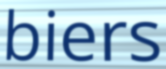
biers